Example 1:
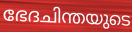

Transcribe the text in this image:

ഭേദചിന്തയുടെ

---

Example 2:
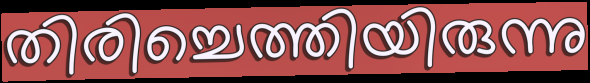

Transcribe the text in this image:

തിരിച്ചെത്തിയിരുന്നു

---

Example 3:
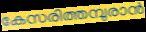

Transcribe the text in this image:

കേസരിത്തമ്പുരാൻ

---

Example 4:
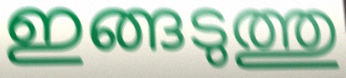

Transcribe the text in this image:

ഇങ്ങടുത്തു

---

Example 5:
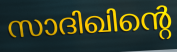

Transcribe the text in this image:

സാദിഖിന്റെ